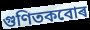
গুণিতকবোৰ